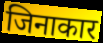
जिनाकार